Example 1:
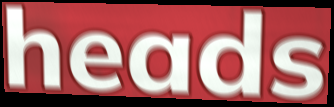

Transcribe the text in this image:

heads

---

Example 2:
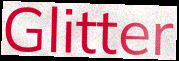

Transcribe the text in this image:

Glitter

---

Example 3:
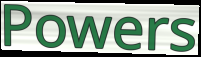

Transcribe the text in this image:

Powers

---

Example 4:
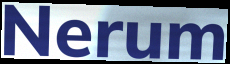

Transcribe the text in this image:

Nerum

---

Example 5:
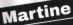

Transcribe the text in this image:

Martine